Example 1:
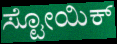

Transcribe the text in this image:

ಸ್ಟೋಯಿಕ್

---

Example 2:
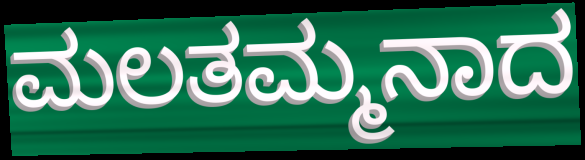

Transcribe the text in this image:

ಮಲತಮ್ಮನಾದ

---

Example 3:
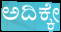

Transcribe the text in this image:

ಅದಿಕ್ಕೇ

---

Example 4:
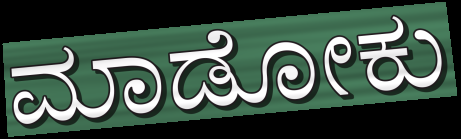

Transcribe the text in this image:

ಮಾಡೋಕು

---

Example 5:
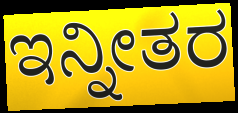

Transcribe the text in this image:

ಇನ್ನೀತರ